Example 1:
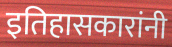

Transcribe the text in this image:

इतिहासकारांनी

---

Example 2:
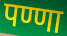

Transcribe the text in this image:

पण्णा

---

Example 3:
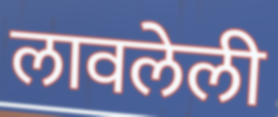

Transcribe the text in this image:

लावलेली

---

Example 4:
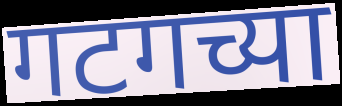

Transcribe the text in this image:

गटगच्या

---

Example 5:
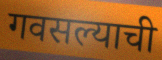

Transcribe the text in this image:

गवसल्याची